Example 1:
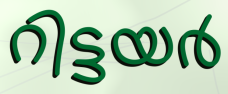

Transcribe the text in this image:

റിട്ടയർ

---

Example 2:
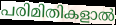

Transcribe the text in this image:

പരിമിതികളാൽ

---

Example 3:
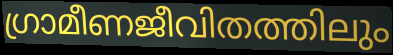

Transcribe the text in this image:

ഗ്രാമീണജീവിതത്തിലും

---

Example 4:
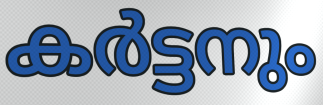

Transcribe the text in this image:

കർട്ടനും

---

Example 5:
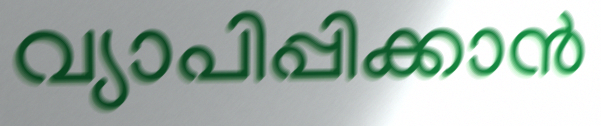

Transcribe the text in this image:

വ്യാപിപ്പിക്കാൻ